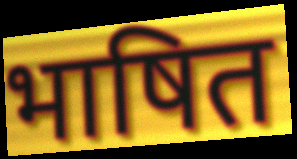
भाषित